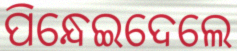
ପିନ୍ଧେଇଦେଲେ